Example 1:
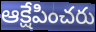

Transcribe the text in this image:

ఆక్షేపించరు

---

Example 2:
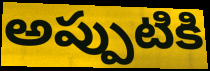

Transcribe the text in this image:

అప్పుటికి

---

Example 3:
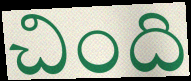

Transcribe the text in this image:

చింది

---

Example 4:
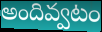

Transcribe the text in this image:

అందివ్వటం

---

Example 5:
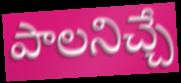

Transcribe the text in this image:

పాలనిచ్చే